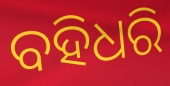
ବହିଧରି